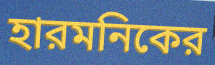
হারমনিকের